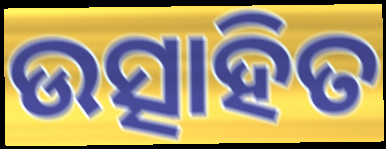
ଉତ୍ସାହିତ